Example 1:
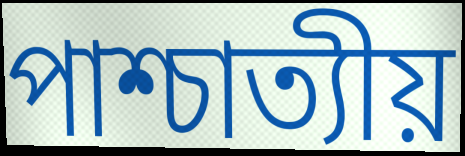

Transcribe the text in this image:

পাশ্চাত্যীয়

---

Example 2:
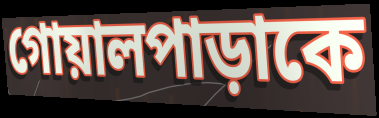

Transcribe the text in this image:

গোয়ালপাড়াকে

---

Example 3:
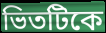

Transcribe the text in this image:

ভিতটিকে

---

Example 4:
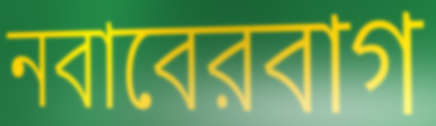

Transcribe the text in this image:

নবাবেরবাগ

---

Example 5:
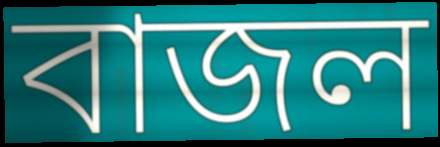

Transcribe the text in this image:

বাজল